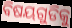
ବିଷୟଗୁଡିକୁ